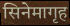
सिनेमागृह